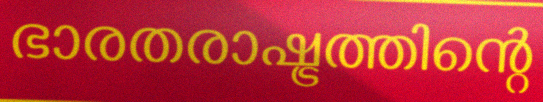
ഭാരതരാഷ്ട്രത്തിന്റെ